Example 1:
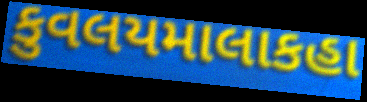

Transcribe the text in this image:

કુવલયમાલાકહા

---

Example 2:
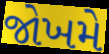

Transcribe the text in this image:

જોખમે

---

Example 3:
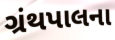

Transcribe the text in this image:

ગ્રંથપાલના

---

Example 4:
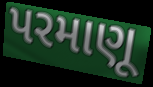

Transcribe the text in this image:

પરમાણૂ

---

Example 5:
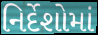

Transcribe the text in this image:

નિર્દેશોમાં